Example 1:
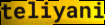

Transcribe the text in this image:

teliyani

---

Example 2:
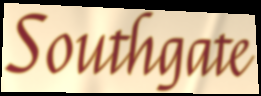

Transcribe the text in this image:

Southgate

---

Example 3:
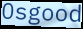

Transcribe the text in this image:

Osgood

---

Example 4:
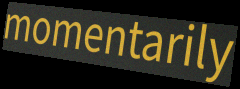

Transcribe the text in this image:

momentarily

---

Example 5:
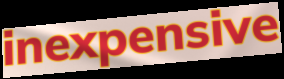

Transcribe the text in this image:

inexpensive